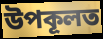
উপকূলত